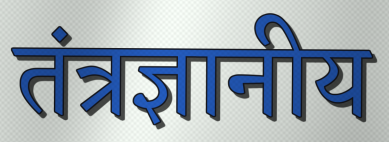
तंत्रज्ञानीय